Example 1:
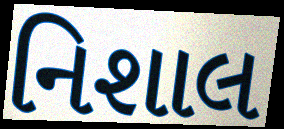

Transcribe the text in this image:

નિશાલ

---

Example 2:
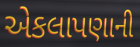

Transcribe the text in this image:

એકલાપણાની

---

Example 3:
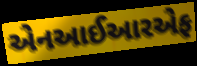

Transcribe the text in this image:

એનઆઈઆરએફ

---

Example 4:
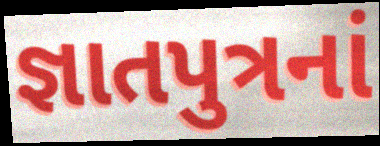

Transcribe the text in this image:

જ્ઞાતપુત્રનાં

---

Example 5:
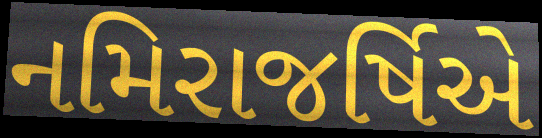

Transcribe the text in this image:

નમિરાજર્ષિએ